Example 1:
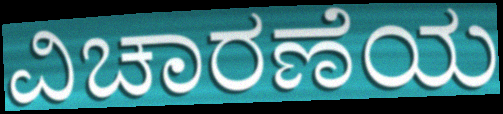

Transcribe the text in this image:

ವಿಚಾರಣೆಯ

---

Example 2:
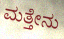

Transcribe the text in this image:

ಮತ್ತೇನು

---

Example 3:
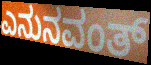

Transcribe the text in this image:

ಎನುನವಂತ್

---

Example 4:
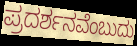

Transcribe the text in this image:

ಪ್ರದರ್ಶನವೆಂಬುದು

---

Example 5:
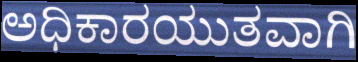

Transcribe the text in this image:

ಅಧಿಕಾರಯುತವಾಗಿ